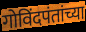
गोविंदपंतांच्या